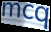
mcq